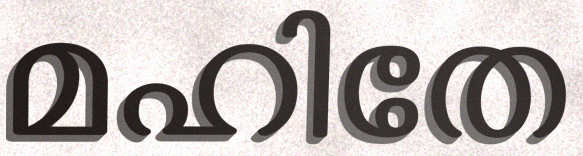
മഹിതേ